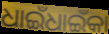
ଧାଇଁଧାଇଁକା